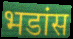
भडांस